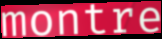
montre